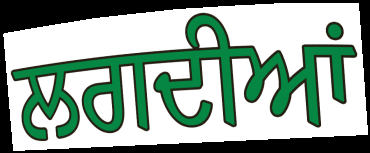
ਲਗਦੀਆਂ